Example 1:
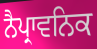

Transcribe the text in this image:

ਨੈਪ੍ਰਾਵਨਿਕ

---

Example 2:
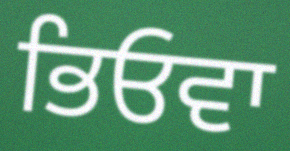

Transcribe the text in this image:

ਭਿਓਵਾ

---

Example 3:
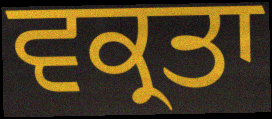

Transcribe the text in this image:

ਵਕ੍ਰਤਾ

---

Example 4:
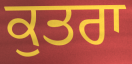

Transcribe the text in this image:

ਕੁਤਰਾ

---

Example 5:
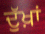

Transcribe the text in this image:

ਦੁੱਖ਼ਾਂ